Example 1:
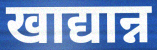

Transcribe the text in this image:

खाद्यान्न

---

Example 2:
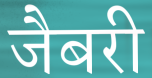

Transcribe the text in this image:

जैबरी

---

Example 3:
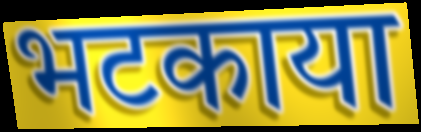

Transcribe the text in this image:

भटकाया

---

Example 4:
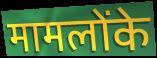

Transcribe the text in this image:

मामलोंके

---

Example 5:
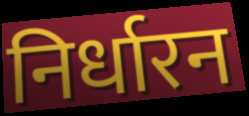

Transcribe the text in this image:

निर्धारन